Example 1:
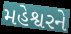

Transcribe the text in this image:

મહેશ્વરને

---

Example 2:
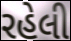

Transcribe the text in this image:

રહેલી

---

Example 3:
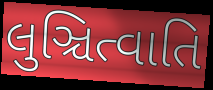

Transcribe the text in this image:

લુઞ્ચિત્વાતિ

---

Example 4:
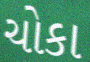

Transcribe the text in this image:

ચોકા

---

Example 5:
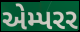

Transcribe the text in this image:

એમ્પરર